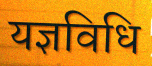
यज्ञविधि